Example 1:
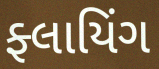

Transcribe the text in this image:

ફ્લાયિંગ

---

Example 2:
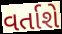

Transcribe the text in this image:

વર્તાશે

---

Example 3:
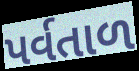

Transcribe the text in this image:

પર્વતાળ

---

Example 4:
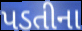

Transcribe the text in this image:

પડતીના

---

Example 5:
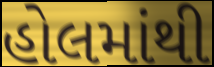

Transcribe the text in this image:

હોલમાંથી